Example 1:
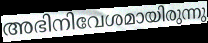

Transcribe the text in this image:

അഭിനിവേശമായിരുന്നു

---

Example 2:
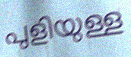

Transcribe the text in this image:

പുളിയുള്ള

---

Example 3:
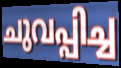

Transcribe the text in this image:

ചുവപ്പിച്ച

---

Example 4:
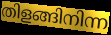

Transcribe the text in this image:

തിളങ്ങിനിന്ന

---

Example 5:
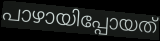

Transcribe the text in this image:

പാഴായിപ്പോയത്